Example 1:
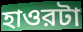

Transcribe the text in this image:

হাওরটা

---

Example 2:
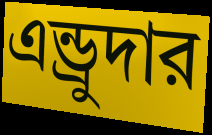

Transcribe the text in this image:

এন্ড্রুদার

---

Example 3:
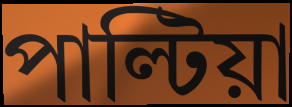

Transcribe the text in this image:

পাল্টিয়া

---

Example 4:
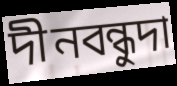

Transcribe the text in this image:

দীনবন্ধুদা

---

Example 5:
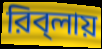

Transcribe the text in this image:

রিব্‌লায়